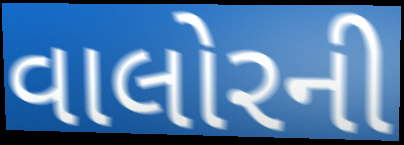
વાલોરની